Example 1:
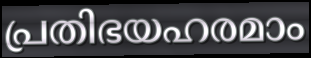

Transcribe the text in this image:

പ്രതിഭയഹരമാം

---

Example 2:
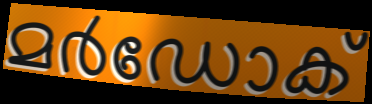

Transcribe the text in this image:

മർഡോക്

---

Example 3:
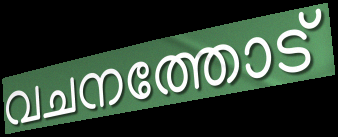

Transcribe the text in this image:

വചനത്തോട്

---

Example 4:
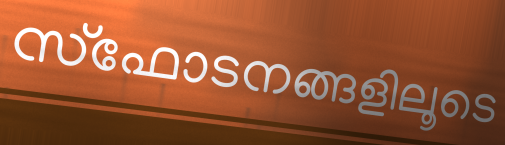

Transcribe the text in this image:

സ്ഫോടനങ്ങളിലൂടെ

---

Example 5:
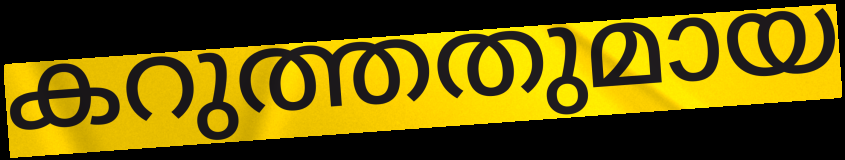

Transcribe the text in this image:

കറുത്തതുമായ